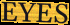
EYES